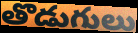
తొడుగులు